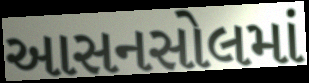
આસનસોલમાં